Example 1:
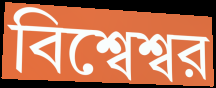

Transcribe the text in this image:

বিশ্বেশ্বর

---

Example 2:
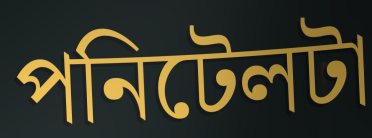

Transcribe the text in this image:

পনিটেলটা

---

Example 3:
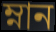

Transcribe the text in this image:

ম্নান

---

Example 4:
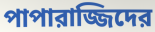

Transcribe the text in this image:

পাপারাজ্জিদের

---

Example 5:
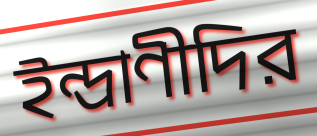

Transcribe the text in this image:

ইন্দ্রাণীদির